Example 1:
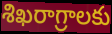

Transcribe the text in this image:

శిఖరాగ్రాలకు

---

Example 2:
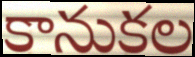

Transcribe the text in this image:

కానుకల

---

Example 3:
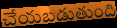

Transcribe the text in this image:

చేయబడుతుంది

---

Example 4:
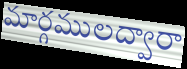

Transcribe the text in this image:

మార్గములద్వారా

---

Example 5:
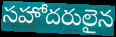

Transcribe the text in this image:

సహోదరులైన